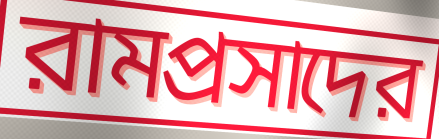
রামপ্রসাদের